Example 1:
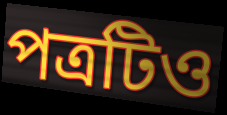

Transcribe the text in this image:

পত্রটিও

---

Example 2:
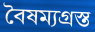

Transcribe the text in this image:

বৈষম্যগ্রস্ত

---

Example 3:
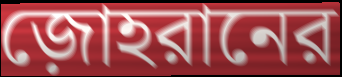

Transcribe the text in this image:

জ়োহরানের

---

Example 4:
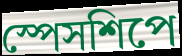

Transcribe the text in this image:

স্পেসশিপে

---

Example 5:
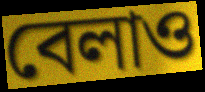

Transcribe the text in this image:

বেলাও